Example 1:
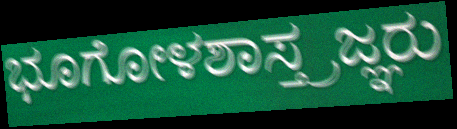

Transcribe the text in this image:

ಭೂಗೋಳಶಾಸ್ತ್ರಜ್ಞರು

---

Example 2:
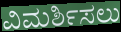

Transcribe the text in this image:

ವಿಮರ್ಶಿಸಲು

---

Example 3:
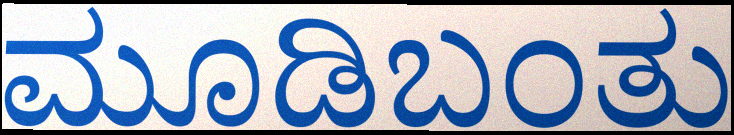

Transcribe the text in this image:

ಮೂಡಿಬಂತು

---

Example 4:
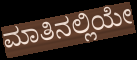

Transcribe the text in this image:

ಮಾತಿನಲ್ಲಿಯೇ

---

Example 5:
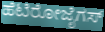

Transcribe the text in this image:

ಹೆಟೆರೋಜೈಗಸ್